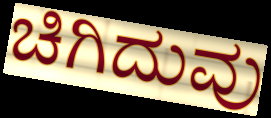
ಚಿಗಿದುವು